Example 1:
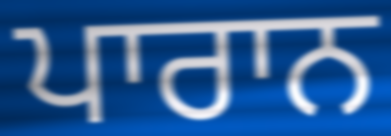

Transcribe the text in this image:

ਪਾਰਾਨ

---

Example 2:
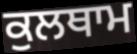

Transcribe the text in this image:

ਕੁਲਥਾਮ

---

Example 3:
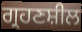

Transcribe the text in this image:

ਗ੍ਰਹਣਸ਼ੀਲ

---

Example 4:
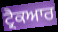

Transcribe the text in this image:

ਟ੍ਰੈਕਆਰ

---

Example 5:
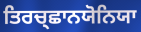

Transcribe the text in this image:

ਤਿਰਚ੍ਛਾਨਯੋਨਿਯਾ